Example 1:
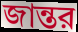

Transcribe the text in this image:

জান্তর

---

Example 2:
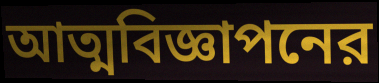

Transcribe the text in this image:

আত্মবিজ্ঞাপনের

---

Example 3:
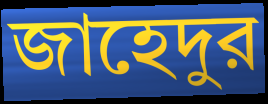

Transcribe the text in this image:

জাহেদুর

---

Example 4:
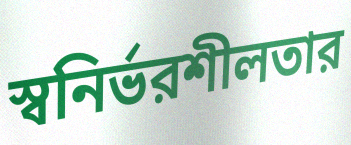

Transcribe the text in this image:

স্বনির্ভরশীলতার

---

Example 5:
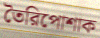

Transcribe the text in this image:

তৈরিপোশাক